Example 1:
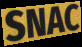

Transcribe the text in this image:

SNAC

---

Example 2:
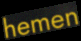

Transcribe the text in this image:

hemen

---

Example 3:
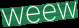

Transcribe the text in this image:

weew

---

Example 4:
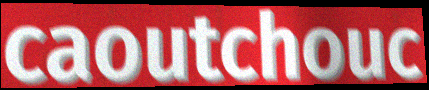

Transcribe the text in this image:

caoutchouc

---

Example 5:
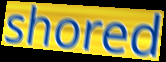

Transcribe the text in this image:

shored